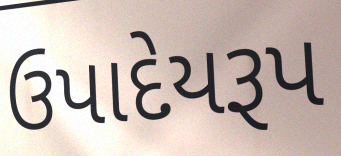
ઉપાદેયરૂપ